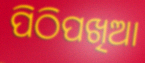
ପିଠିପଖିଆ